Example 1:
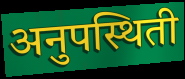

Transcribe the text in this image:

अनुपस्थिती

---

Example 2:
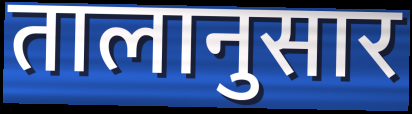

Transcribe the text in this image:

तालानुसार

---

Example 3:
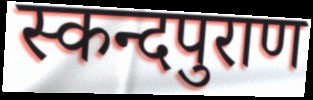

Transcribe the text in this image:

स्कन्दपुराण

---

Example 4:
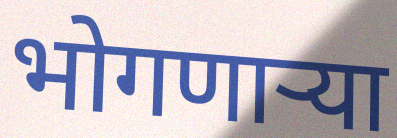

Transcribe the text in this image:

भोगणाऱ्या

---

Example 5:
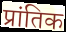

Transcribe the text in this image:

प्रांतिक